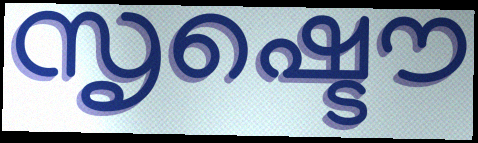
സൃഷ്ടൌ